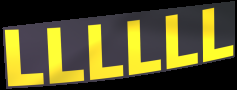
LLLLLL